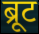
ब्रूट